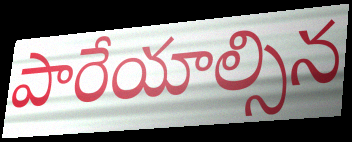
పారేయాల్సిన